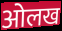
ओलख